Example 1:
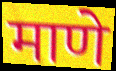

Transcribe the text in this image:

माणे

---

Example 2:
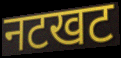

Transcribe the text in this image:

नटखट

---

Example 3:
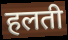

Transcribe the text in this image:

हलती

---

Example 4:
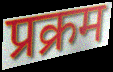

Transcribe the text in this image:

प्रक्रम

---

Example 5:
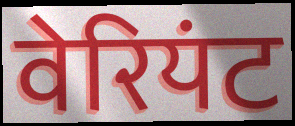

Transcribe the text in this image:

वेरियंट